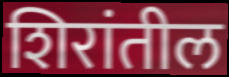
शिरांतील